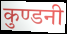
कुण्डनी